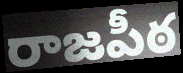
రాజపీఠ